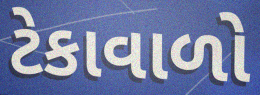
ટેકાવાળો